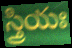
స్త్రియః